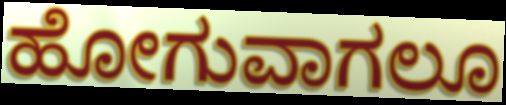
ಹೋಗುವಾಗಲೂ